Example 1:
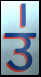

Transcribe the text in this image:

उ॑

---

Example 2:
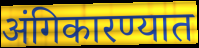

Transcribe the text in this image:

अंगिकारण्यात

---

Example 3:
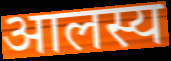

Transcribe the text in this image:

आलस्य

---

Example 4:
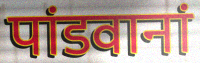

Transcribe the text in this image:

पांडवानां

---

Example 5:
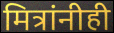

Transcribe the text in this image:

मित्रांनीही